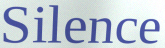
Silence